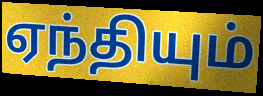
ஏந்தியும்